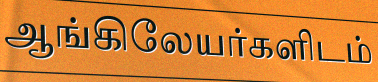
ஆங்கிலேயர்களிடம்